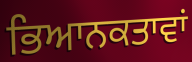
ਭਿਆਨਕਤਾਵਾਂ